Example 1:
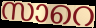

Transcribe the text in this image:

സാറെ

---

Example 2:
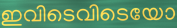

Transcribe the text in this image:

ഇവിടെവിടെയോ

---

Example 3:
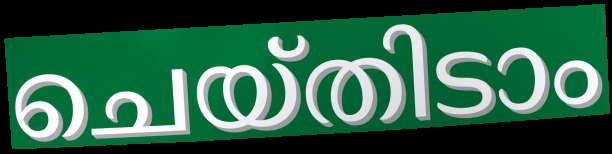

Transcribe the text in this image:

ചെയ്തിടാം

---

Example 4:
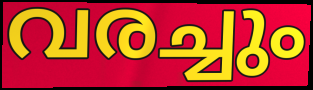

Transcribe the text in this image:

വരച്ചും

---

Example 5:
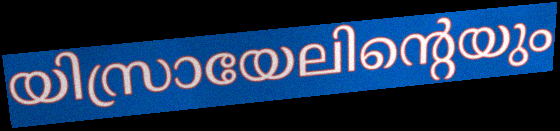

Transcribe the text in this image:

യിസ്രായേലിന്റെയും